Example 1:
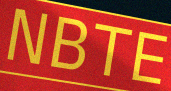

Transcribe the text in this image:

NBTE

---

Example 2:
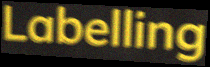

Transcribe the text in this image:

Labelling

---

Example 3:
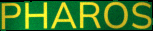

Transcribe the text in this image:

PHAROS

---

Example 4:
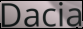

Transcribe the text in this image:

Dacia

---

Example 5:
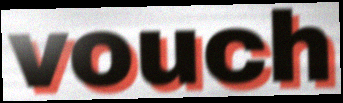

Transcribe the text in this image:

vouch